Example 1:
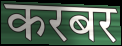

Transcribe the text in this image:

करबर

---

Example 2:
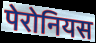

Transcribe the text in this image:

पेरोनियस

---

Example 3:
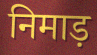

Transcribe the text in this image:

निमाड़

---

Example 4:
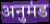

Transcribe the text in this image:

अनुमंड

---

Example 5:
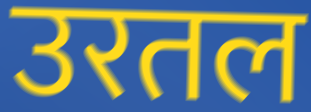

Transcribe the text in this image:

उरतल